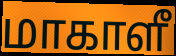
மாகாளீ